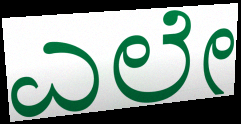
ಎಲೇ